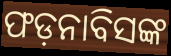
ଫଡ଼ନାବିସଙ୍କ